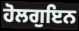
ਹੋਲਗੁਇਨ